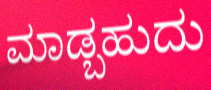
ಮಾಡ್ಬಹುದು